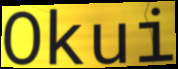
Okui